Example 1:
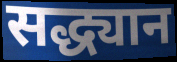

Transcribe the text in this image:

सद्ध्यान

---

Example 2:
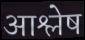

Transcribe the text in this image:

आश्लेष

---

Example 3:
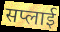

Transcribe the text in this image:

सप्‍लाई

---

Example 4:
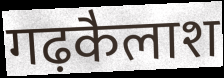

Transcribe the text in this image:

गढ़कैलाश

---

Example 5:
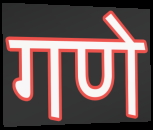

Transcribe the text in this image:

गणे